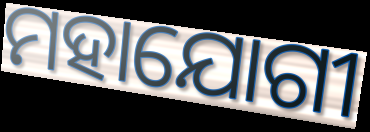
ମହାଯୋଗୀ